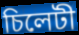
চিলেটী